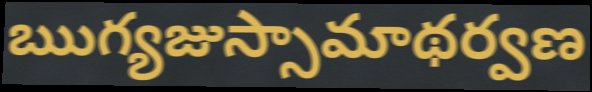
ఋగ్యజుస్సామాథర్వణ